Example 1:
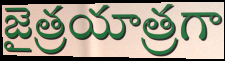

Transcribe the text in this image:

జైత్రయాత్రగా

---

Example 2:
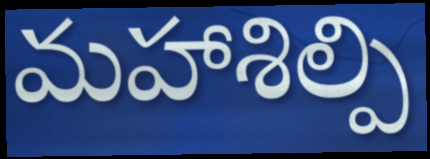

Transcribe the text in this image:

మహాశిల్పి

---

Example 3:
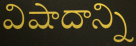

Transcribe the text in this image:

విషాదాన్ని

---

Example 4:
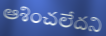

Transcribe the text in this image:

ఆశించలేదని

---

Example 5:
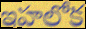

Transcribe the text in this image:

ఇహలోక